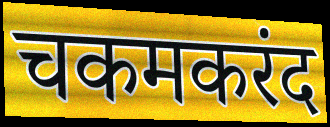
चकमकरंद